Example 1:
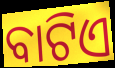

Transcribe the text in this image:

ବାଟିଏ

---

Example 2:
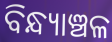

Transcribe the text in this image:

ବିନ୍ଧ୍ୟାଞ୍ଚଳ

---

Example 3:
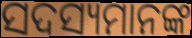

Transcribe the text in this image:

ସଦସ୍ୟମାନଙ୍କ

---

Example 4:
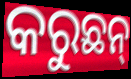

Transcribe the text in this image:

କରୁଛନ୍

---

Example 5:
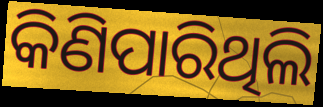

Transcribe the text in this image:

କିଣିପାରିଥିଲି